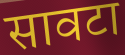
सावटा